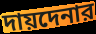
দায়দেনার